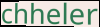
chheler